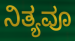
ನಿತ್ಯವೂ